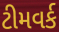
ટીમવર્ક